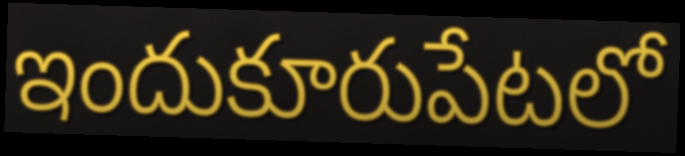
ఇందుకూరుపేటలో